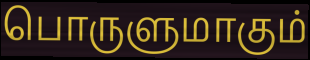
பொருளுமாகும்